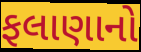
ફલાણાનો